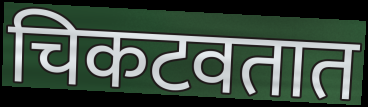
चिकटवतात